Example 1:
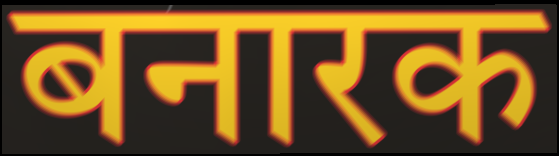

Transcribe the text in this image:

बनारक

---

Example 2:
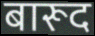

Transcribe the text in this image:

बारूद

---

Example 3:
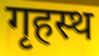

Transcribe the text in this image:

गृहस्‍थ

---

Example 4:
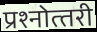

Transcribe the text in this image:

प्रश्‍नोत्‍तरी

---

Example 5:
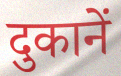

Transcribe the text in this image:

दुकानें